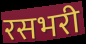
रसभरी